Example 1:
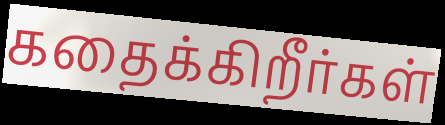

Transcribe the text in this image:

கதைக்கிறீர்கள்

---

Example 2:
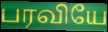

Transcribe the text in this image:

பரவியே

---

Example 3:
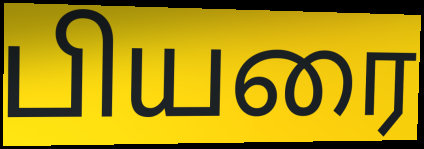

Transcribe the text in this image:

பியரை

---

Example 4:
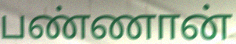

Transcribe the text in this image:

பண்ணான்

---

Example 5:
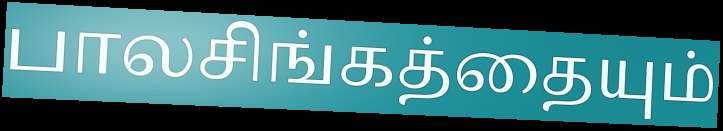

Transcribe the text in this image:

பாலசிங்கத்தையும்